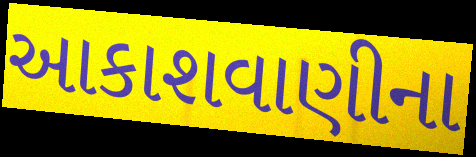
આકાશવાણીના